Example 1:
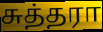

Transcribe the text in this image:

சுத்தரா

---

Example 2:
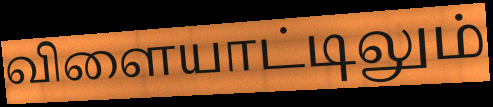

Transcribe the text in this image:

விளையாட்டிலும்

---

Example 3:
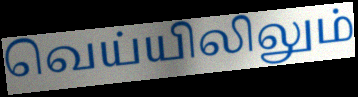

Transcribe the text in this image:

வெய்யிலிலும்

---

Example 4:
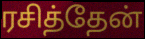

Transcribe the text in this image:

ரசித்தேன்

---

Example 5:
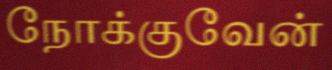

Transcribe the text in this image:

நோக்குவேன்